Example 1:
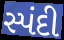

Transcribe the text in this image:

સ્પંદી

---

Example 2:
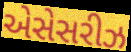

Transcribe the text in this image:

એસેસરીઝ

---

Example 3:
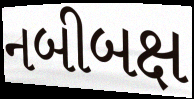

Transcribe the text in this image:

નબીબક્ષ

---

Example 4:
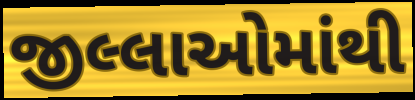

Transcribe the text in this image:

જીલ્લાઓમાંથી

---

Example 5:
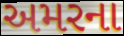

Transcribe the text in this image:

અમરના